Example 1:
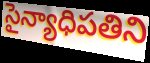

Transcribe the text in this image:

సైన్యాధిపతిని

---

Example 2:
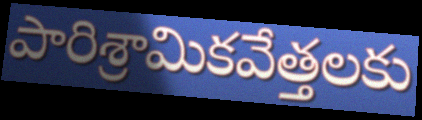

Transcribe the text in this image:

పారిశ్రామికవేత్తలకు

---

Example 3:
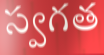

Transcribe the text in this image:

స్వగత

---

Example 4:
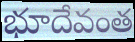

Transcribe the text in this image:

భూదేవంత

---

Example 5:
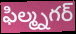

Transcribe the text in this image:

ఫిల్మ్నగర్